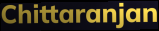
Chittaranjan